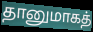
தானுமாகத்